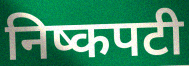
निष्कपटी